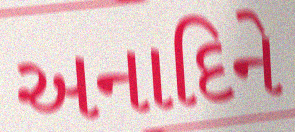
અનાદિને